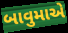
બાવુમાએ